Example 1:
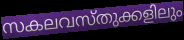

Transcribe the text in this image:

സകലവസ്തുക്കളിലും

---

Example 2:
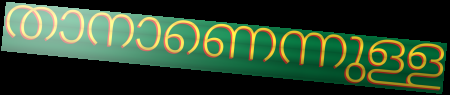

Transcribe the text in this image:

താനാണെന്നുള്ള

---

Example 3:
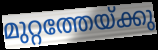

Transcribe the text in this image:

മുറ്റത്തേയ്ക്കു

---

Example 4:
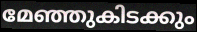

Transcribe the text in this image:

മേഞ്ഞുകിടക്കും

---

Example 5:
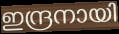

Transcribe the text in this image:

ഇന്ദ്രനായി